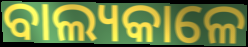
ବାଲ୍ୟକାଳେ